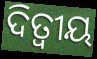
ଦିତ୍ୱୀୟ